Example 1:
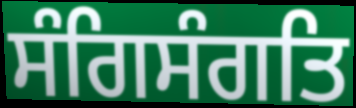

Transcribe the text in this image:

ਸੰਗਿਸੰਗਤਿ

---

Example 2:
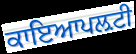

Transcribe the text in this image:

ਕਾਇਆਪਲ਼ਟੀ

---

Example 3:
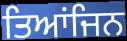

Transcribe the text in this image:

ਤਿਆਂਜਿਨ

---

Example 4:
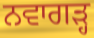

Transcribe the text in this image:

ਨਵਾਗੜ੍ਹ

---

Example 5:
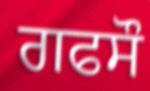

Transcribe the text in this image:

ਗਫਸੌ